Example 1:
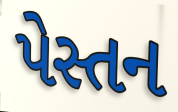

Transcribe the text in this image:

પેસ્તન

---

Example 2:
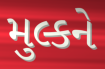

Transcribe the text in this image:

મુલ્કને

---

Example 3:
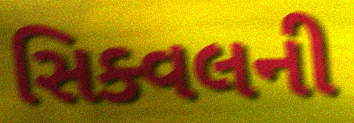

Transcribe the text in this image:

સિક્વલની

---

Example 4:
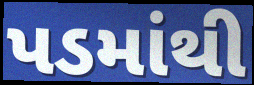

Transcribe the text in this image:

પડમાંથી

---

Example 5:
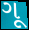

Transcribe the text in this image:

ગૂ